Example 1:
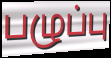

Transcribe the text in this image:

பழுப்பு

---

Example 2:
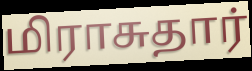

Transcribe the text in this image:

மிராசுதார்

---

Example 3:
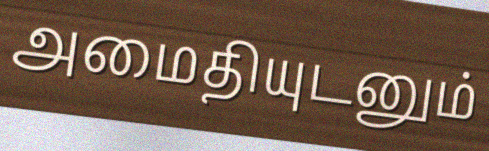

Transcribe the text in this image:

அமைதியுடனும்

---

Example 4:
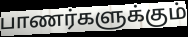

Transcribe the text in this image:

பாணர்களுக்கும்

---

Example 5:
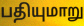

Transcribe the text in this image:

பதியுமாறு